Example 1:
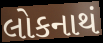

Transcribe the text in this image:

લોકનાથં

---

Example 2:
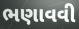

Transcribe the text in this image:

ભણાવવી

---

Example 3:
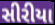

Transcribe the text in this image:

સીરીયા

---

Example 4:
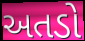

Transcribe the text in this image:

અતડો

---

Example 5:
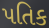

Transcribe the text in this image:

પતિક